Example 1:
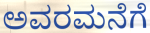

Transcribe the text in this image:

ಅವರಮನೆಗೆ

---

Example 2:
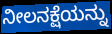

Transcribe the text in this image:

ನೀಲನಕ್ಷೆಯನ್ನು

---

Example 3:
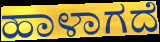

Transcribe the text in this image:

ಹಾಳಾಗದೆ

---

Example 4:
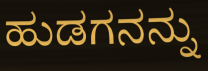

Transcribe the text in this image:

ಹುಡಗನನ್ನು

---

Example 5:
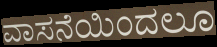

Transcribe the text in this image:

ವಾಸನೆಯಿಂದಲೂ